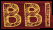
BBI